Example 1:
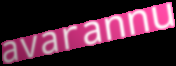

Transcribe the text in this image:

avarannu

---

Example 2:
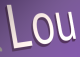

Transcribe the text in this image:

Lou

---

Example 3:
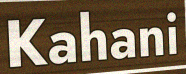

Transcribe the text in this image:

Kahani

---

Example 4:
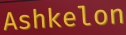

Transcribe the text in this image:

Ashkelon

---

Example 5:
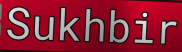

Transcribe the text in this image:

Sukhbir